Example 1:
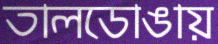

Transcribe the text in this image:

তালডোঙায়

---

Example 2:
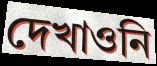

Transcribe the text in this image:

দেখাওনি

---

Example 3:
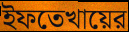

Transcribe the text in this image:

ইফতেখায়ের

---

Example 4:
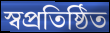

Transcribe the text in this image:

স্বপ্রতিষ্ঠিত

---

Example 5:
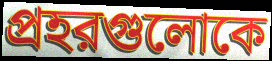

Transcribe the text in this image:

প্রহরগুলোকে